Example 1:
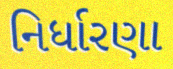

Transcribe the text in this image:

નિર્ધારણા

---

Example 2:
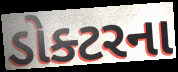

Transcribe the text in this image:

ડોક્ટરના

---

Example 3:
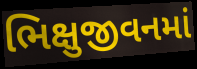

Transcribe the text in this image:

ભિક્ષુજીવનમાં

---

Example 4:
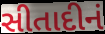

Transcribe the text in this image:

સીતાદીનં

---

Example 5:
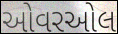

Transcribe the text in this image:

ઓવરઓલ